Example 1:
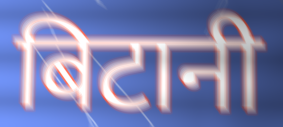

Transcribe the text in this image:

बिटानी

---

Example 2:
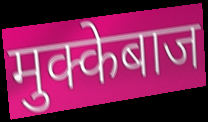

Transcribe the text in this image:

मुक्केबाज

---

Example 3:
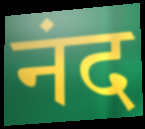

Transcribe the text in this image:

नंद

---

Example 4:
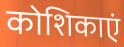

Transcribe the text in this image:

कोशिकाएं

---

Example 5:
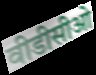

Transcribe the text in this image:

वीडीसीओ